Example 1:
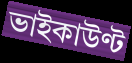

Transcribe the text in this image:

ভাইকাউণ্ট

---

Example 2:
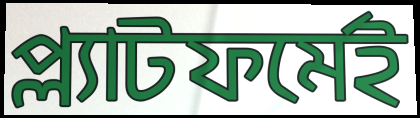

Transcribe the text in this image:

প্ল্যাটফর্মেই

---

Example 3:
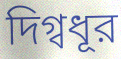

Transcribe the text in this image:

দিগ্বধূর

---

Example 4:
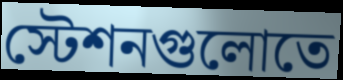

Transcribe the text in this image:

স্টেশনগুলোতে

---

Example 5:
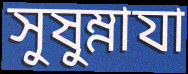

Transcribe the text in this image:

সুষুম্নাযা